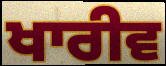
ਖਾਰੀਵ